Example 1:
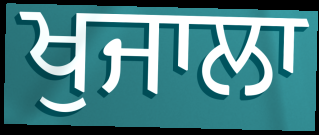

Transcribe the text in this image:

ਖੁਜਾਲਾ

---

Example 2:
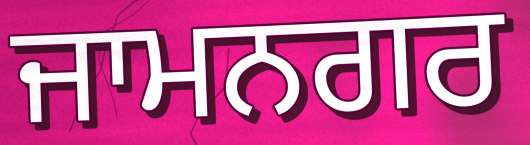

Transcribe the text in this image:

ਜਾਮਨਗਰ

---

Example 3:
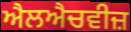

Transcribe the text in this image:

ਐਲਐਚਵੀਜ਼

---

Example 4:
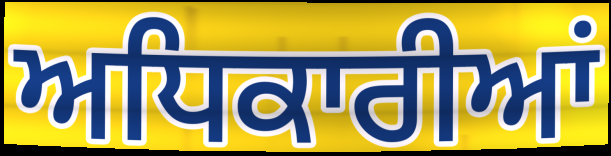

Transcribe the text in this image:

ਅਧਿਕਾਰੀਆਂ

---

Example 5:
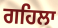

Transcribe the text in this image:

ਗਹਿਲਾ